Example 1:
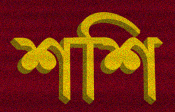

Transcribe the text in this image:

শশি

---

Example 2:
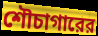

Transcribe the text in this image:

শৌচাগারের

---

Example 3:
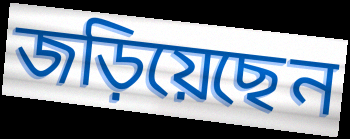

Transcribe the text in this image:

জড়িয়েছেন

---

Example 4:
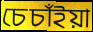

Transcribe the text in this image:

চেচাঁইয়া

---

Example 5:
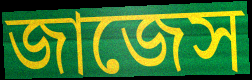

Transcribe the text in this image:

জাজেস